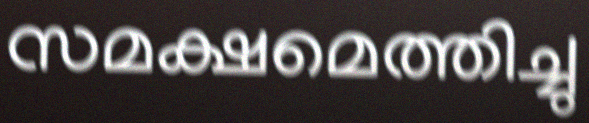
സമക്ഷമെത്തിച്ചു